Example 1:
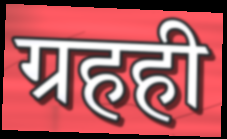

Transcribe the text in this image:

ग्रहही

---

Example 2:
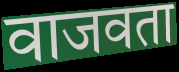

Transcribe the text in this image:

वाजवता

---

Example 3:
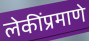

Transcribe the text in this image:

लेकींप्रमाणे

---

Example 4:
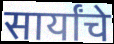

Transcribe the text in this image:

सार्यांचे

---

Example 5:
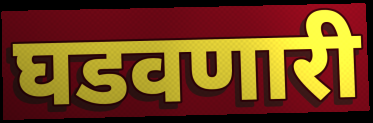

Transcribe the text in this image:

घडवणारी